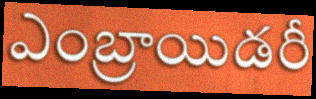
ఎంబ్రాయిడరీ